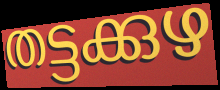
തട്ടക്കുഴ